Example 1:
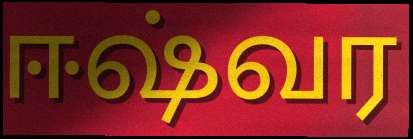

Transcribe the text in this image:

ஈஷ்வர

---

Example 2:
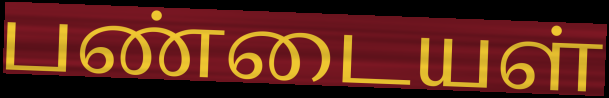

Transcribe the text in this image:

பண்டையள்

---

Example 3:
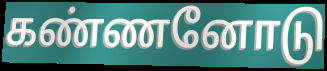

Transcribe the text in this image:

கண்ணனோடு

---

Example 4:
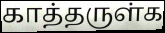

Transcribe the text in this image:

காத்தருள்க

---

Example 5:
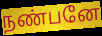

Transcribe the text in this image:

நண்பனே